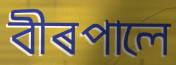
বীৰপালে